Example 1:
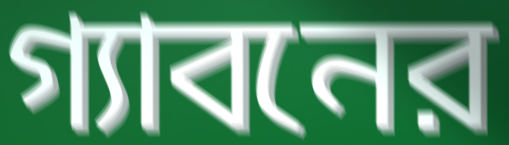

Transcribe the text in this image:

গ্যাবনের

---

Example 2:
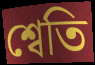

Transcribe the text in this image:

শ্বেতি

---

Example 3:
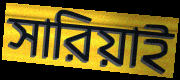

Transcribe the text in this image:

সারিয়াই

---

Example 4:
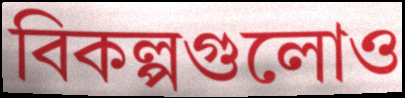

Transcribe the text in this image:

বিকল্পগুলোও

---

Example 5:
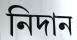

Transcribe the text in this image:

নিদান